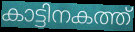
കാട്ടിനകത്ത്